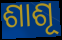
ଶାଶୂ